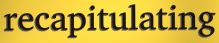
recapitulating